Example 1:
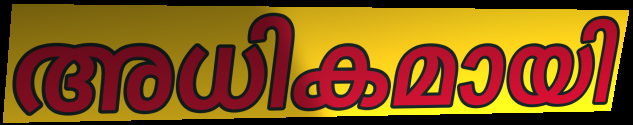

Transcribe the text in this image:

അധികമായി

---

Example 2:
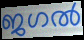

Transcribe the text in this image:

ജഗൽ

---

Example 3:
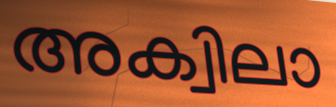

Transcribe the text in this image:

അക്വിലാ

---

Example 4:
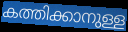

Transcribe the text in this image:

കത്തിക്കാനുള്ള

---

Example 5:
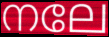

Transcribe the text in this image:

നലേ